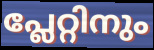
പ്ലേറ്റിനും